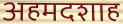
अहमदशाह